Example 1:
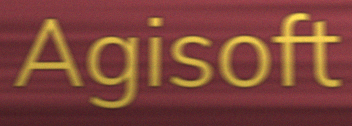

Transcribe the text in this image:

Agisoft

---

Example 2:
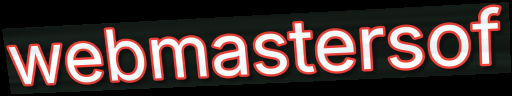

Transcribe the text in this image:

webmastersof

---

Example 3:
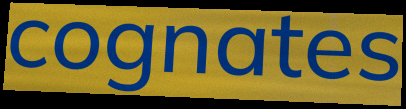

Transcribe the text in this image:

cognates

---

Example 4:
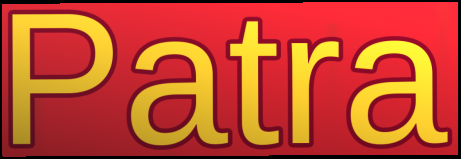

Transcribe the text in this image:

Patra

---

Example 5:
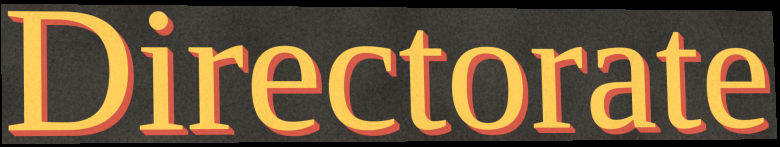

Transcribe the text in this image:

Directorate